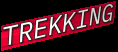
TREKKING